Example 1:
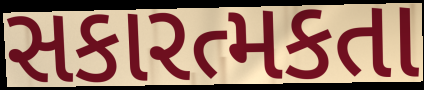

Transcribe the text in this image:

સકારત્મકતા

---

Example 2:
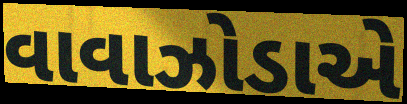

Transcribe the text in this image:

વાવાઝોડાએ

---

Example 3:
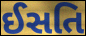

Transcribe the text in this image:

ઈસતિ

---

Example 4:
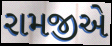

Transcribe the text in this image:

રામજીએ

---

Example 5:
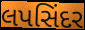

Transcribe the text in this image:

લપસિંદર